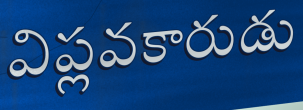
విప్లవకారుడు